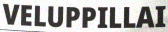
VELUPPILLAI